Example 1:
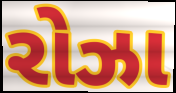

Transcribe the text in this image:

રોઝા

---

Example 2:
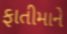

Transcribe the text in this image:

ફાતીમાને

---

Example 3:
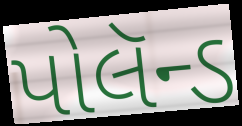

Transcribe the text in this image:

પોલૅન્ડ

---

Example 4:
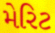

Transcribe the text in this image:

મેરિટ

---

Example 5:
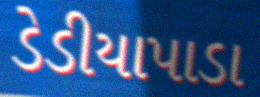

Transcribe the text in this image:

ડેડીયાપાડા